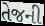
તેજની